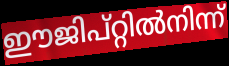
ഈജിപ്റ്റിൽനിന്ന്